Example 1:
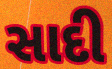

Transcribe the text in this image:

સાદી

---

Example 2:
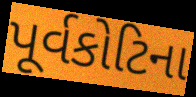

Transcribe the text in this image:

પૂર્વકોટિના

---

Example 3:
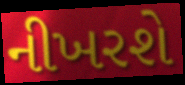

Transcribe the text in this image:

નીખરશે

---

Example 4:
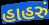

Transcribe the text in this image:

હાહરું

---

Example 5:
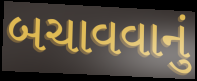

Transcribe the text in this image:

બચાવવાનું